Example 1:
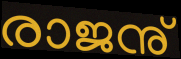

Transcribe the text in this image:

രാജനു്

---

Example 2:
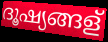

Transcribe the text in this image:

ദൂഷ്യങ്ങള്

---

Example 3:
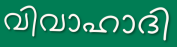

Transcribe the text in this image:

വിവാഹാദി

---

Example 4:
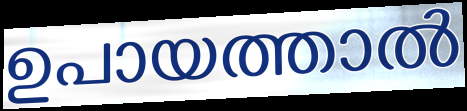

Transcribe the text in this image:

ഉപായത്താൽ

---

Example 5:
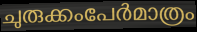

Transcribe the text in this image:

ചുരുക്കംപേർമാത്രം